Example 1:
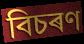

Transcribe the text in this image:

বিচৰণ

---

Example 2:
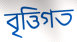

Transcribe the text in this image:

বৃত্তিগত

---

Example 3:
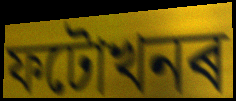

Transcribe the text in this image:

ফটোখনৰ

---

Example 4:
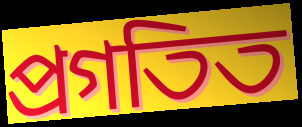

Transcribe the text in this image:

প্ৰগতিত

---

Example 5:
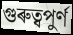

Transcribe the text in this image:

গুৰুত্বপুৰ্ণ